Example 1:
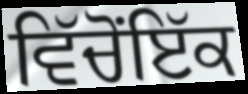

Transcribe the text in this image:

ਵਿੱਚੋਂਇੱਕ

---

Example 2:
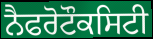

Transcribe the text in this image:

ਨੈਫਰੋਟੌਕਸਿਟੀ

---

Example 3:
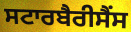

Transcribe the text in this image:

ਸਟਾਰਬੈਰੀਸੈਂਸ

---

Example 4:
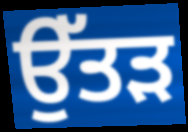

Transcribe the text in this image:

ਉੱਤੜ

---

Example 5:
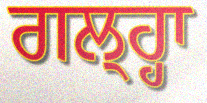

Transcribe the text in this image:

ਗਲ੍ਹ੍ਹਾ